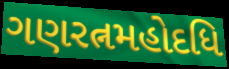
ગણરત્નમહોદધિ